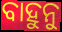
ବାହୁନୁ